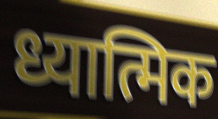
ध्यात्मिक